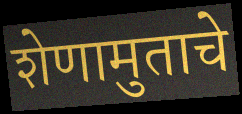
शेणामुताचे